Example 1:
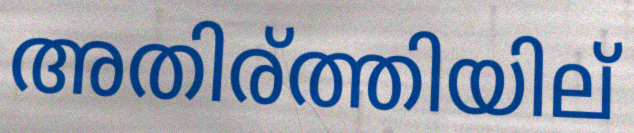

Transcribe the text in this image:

അതിര്ത്തിയില്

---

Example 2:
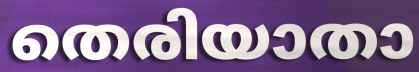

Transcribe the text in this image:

തെരിയാതാ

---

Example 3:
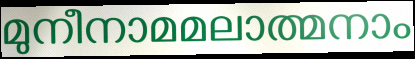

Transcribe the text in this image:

മുനീനാമമലാത്മനാം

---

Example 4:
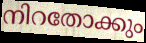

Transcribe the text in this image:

നിറതോക്കും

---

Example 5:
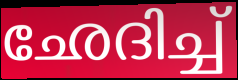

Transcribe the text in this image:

ഛേദിച്ച്